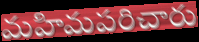
మహిమపరిచారు